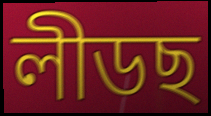
লীডছ